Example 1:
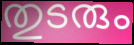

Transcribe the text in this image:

തുടരും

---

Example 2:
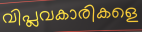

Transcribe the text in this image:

വിപ്ലവകാരികളെ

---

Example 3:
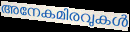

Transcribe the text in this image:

അനേകമിരവുകൾ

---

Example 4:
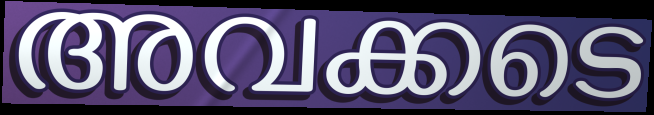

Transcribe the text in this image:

അവക്കടെ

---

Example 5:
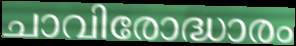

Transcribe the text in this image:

ചാവിരോദ്ധാരം